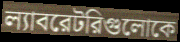
ল্যাবরেটরিগুলোকে